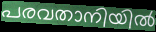
പരവതാനിയിൽ